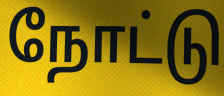
நோட்டு